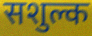
सशुल्क